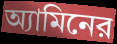
অ্যামিনের